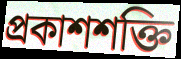
প্রকাশশক্তি